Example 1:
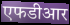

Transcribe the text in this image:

एफडीआर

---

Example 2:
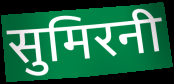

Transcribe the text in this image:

सुमिरनी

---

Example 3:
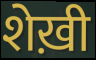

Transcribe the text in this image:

शेख़ी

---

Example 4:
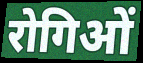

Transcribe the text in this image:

रोगिओं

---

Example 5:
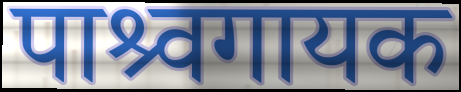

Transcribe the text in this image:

पाश्र्वगायक